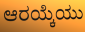
ಆರಯ್ಕೆಯು